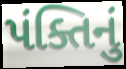
પંક્તિનું